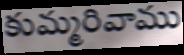
కుమ్మరివాము